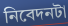
নিবেদনটা